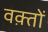
वक़्तों